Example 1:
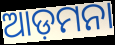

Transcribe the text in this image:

ଆଡ଼ମନା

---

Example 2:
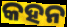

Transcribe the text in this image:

କହନ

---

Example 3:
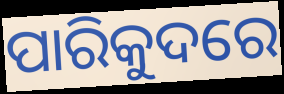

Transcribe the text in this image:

ପାରିକୁଦରେ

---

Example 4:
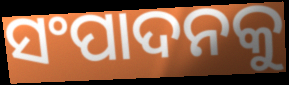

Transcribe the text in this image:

ସଂପାଦନକୁ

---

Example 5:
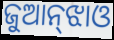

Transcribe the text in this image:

ଜୁଆନ୍‌ଝାଓ